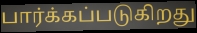
பார்க்கப்படுகிறது